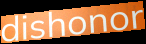
dishonor